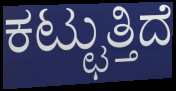
ಕಟ್ಟುತ್ತಿದೆ